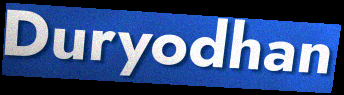
Duryodhan